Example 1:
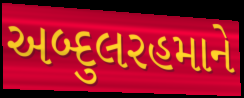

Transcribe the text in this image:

અબ્દુલરહમાને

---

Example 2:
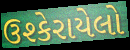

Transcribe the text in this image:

ઉશ્કેરાયેલો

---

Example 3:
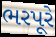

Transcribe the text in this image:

ભરપૂરે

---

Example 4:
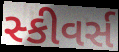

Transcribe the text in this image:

સ્કીવર્સ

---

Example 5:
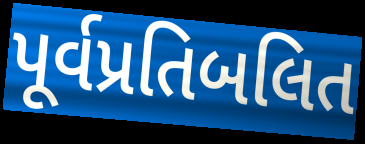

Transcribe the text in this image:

પૂર્વપ્રતિબલિત